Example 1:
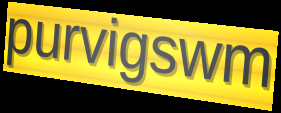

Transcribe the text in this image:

purvigswm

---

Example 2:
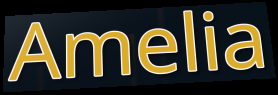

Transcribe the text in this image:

Amelia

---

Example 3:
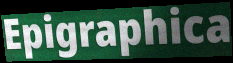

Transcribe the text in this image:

Epigraphica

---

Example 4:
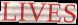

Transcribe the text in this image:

LIVES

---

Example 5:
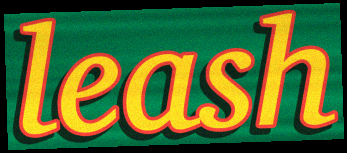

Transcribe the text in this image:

leash